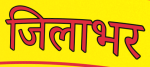
जिलाभर